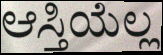
ಆಸ್ತಿಯೆಲ್ಲ